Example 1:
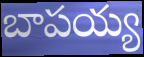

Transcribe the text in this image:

బాపయ్య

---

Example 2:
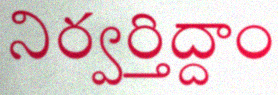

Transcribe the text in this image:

నిర్వర్తిద్దాం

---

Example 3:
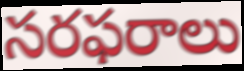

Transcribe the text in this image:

సరఫరాలు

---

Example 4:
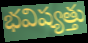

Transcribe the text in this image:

భవిష్యత్తు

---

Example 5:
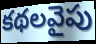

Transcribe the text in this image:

కథలవైపు